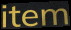
item